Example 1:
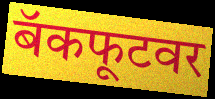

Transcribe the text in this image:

बॅकफूटवर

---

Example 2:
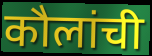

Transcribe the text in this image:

कौलांची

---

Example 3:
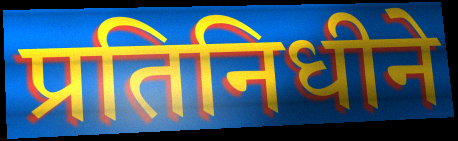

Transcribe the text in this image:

प्रतिनिधीने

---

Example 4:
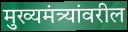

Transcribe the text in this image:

मुख्यमंत्र्यांवरील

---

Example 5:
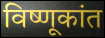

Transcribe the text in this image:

विष्णूकांत